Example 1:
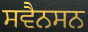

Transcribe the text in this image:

ਸਵੈਨਸਨ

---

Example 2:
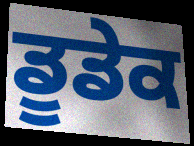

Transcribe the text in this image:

ਡੂਡੇਕ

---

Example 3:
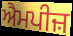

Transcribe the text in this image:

ਐਮਪੀਜ਼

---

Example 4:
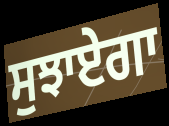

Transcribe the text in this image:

ਸੁਝਾਏਗਾ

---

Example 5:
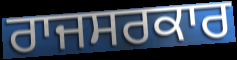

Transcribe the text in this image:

ਰਾਜਸਰਕਾਰ